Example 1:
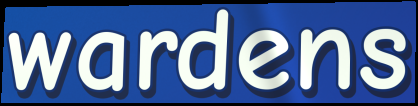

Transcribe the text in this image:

wardens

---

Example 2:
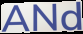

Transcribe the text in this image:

ANd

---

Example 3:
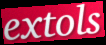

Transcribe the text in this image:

extols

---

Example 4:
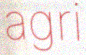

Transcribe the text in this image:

agri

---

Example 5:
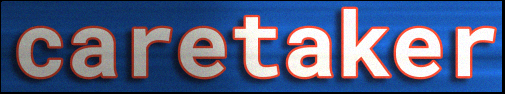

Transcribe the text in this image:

caretaker